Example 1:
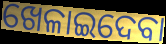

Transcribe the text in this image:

ଖେଳାଇଦେବା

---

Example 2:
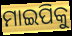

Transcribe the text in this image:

ମାଇପିକୁ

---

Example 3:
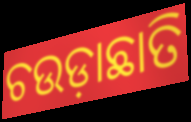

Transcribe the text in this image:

ଚଉଡ଼ାଛାତି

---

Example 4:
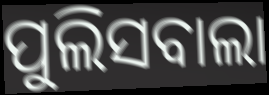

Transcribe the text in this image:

ପୁଲିସବାଲା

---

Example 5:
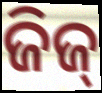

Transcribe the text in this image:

ଜିଜ୍